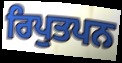
ਰਿਪੁਤਪਨ